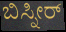
ಬಿಸ್ನೀರ್